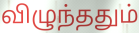
விழுந்ததும்